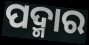
ପଦ୍ମାର